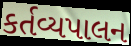
કર્તવ્યપાલન